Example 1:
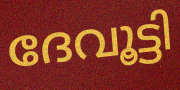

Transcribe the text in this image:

ദേവൂട്ടി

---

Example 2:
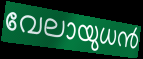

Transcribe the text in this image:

വേലായുധൻ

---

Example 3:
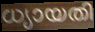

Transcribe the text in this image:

ധ്യായതി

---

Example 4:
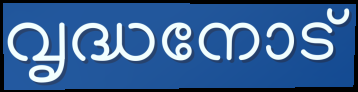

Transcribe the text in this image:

വൃദ്ധനോട്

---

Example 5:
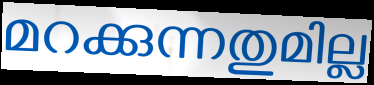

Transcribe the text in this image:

മറക്കുന്നതുമില്ല